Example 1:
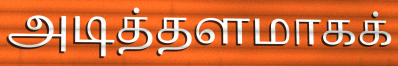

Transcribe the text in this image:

அடித்தளமாகக்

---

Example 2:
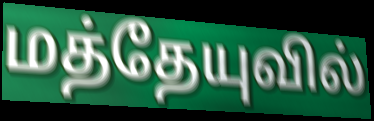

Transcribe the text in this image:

மத்தேயுவில்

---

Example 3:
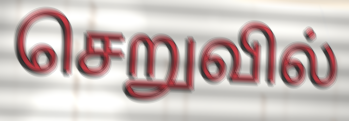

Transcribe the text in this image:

செறுவில்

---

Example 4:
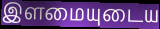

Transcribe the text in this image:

இளமையுடைய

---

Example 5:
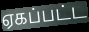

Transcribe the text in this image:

ஏகப்பட்ட